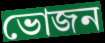
ভোজন